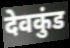
देवकुंड